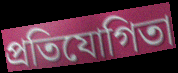
প্ৰতিযোগিতা